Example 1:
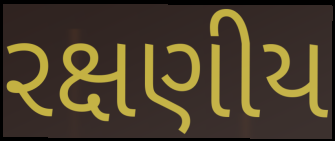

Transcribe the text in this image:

રક્ષણીય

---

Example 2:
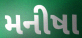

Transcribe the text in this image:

મનીષા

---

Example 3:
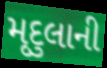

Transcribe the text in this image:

મૃદુલાની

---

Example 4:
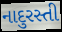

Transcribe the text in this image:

નાદુરસ્તી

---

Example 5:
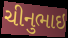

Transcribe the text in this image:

ચીનુભાઇ